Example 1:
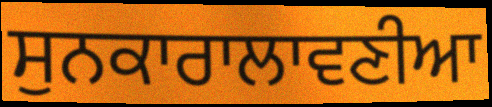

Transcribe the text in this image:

ਸੁਨਕਾਰਾਲਾਵਣੀਆ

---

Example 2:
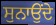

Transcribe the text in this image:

ਸੁਨਾਉਂਦੇ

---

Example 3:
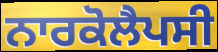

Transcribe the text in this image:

ਨਾਰਕੋਲੈਪਸੀ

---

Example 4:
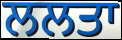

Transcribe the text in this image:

ਲਲਤਾ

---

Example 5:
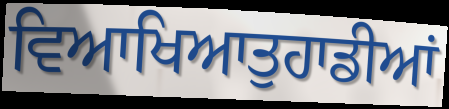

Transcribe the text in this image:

ਵਿਆਖਿਆਤੁਹਾਡੀਆਂ